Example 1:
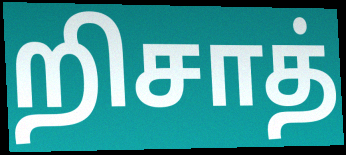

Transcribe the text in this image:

றிசாத்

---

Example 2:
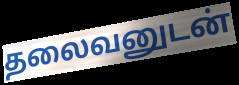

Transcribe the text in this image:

தலைவனுடன்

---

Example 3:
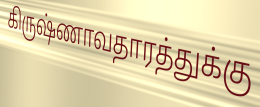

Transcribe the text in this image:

கிருஷ்ணாவதாரத்துக்கு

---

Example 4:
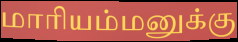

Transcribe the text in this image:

மாரியம்மனுக்கு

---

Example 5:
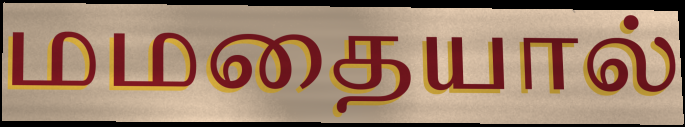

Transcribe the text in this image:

மமதையால்